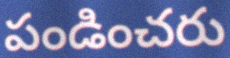
పండించరు